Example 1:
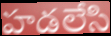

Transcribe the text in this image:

హడలేసి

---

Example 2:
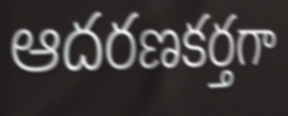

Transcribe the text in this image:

ఆదరణకర్తగా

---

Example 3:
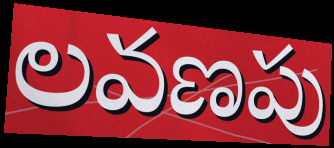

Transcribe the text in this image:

లవణపు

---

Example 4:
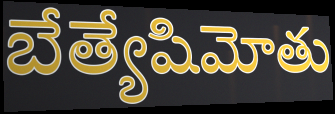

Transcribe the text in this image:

బేత్యేషిమోతు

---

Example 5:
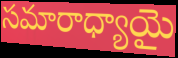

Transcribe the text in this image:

సమారాధ్యాయై